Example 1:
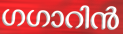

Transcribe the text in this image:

ഗഗാറിൻ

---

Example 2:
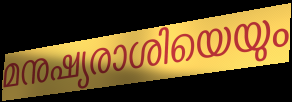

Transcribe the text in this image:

മനുഷ്യരാശിയെയും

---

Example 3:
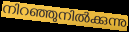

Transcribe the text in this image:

നിറഞ്ഞുനിൽക്കുന്നു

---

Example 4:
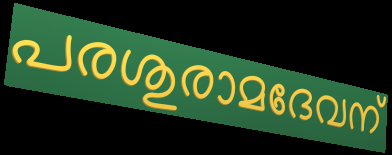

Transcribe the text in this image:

പരശുരാമദേവന്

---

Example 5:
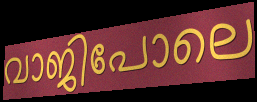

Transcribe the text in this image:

വാജിപോലെ